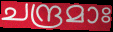
ചന്ദ്രമാഃ